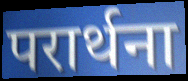
परार्थना